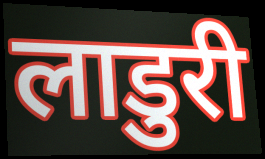
लाडुरी